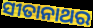
ସୀତାନାଥର